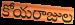
కోయరాజుల